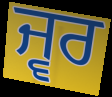
ਜ੍ਵਰ